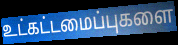
உட்கட்டமைப்புகளை